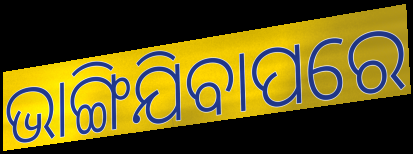
ଭାଙ୍ଗିଯିବାପରେ